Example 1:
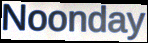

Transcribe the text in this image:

Noonday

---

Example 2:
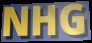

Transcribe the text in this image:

NHG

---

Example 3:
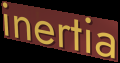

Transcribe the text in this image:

inertia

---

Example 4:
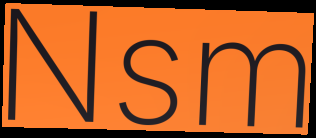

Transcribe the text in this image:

Nsm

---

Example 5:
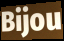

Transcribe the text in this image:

Bijou